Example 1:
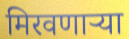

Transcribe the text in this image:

मिरवणाऱ्या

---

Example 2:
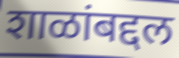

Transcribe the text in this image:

शाळांबद्दल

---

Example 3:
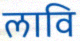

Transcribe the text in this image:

लावि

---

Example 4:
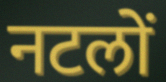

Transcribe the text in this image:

नटलों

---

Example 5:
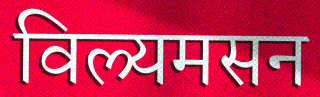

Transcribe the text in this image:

विल्यमसन